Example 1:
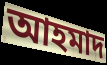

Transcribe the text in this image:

আহমাদ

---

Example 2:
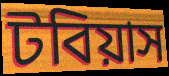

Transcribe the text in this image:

টবিয়াস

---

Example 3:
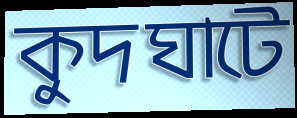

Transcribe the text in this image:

কুদঘাটে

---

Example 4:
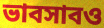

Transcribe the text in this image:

ভাবসাবও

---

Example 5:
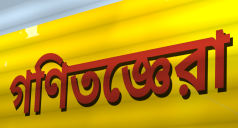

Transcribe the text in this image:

গণিতজ্ঞেরা